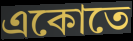
একোতে